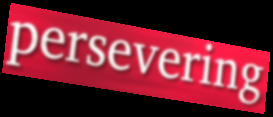
persevering